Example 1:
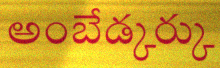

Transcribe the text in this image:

అంబేడ్కర్కు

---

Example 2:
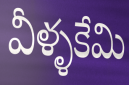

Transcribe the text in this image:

వీళ్ళకేమి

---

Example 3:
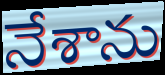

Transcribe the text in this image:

నేశాను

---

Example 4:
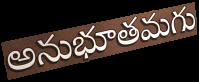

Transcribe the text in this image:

అనుభూతమగు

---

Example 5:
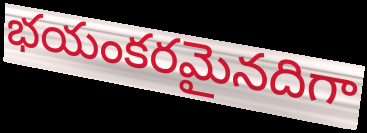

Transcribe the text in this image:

భయంకరమైనదిగా